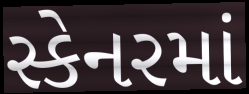
સ્કેનરમાં